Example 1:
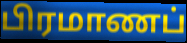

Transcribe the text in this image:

பிரமாணப்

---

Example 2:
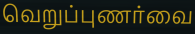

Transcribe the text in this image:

வெறுப்புணர்வை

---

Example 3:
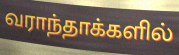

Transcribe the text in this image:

வராந்தாக்களில்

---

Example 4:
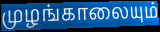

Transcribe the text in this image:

முழங்காலையும்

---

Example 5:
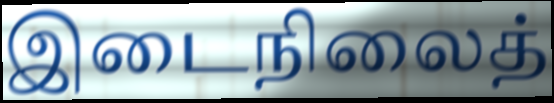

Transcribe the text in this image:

இடைநிலைத்